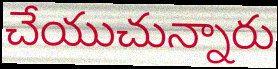
చేయుచున్నారు